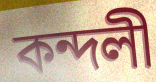
কন্দলী